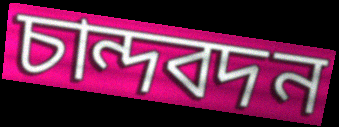
চান্দবদন